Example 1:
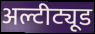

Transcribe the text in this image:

अल्टीट्यूड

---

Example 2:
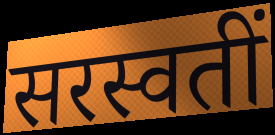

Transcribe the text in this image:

सरस्वतीं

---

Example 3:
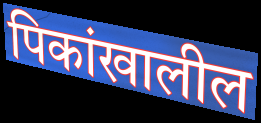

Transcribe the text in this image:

पिकांखालील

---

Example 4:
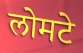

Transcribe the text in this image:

लोमटे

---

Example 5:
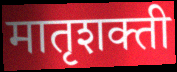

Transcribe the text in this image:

मातृशक्ती